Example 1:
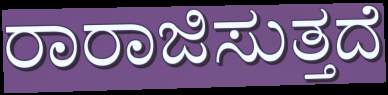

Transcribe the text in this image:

ರಾರಾಜಿಸುತ್ತದೆ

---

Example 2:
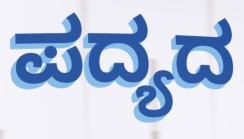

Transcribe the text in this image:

ಪದ್ಯದ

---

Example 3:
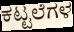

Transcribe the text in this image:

ಕಟ್ಟಲೆಗಳ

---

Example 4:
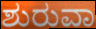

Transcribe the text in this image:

ಶುರುವಾ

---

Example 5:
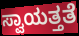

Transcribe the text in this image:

ಸ್ವಾಯತ್ತತೆ